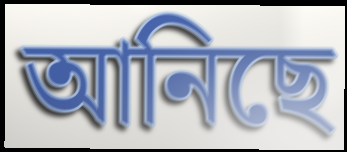
আনিছে